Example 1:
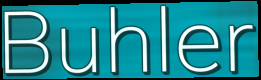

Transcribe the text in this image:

Buhler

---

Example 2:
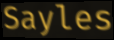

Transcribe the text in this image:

Sayles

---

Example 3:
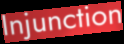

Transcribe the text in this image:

Injunction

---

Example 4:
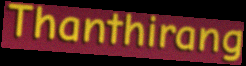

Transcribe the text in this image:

Thanthirang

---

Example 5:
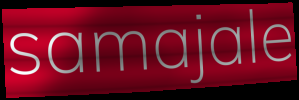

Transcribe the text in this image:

samajale